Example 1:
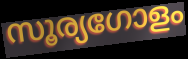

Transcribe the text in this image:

സൂര്യഗോളം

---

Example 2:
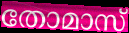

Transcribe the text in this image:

തോമാസ്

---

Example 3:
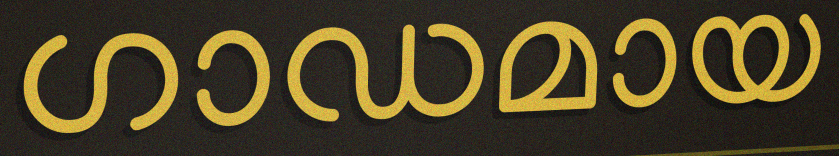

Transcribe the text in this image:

ഗാഡമായ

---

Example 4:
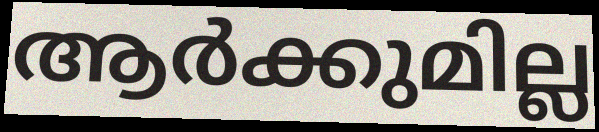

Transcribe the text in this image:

ആർക്കുമില്ല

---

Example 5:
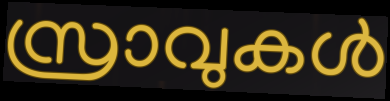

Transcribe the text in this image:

സ്രാവുകൾ